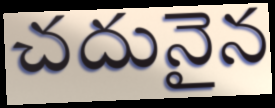
చదునైన